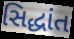
સિદ્ધાંત